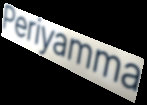
Periyamma